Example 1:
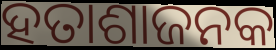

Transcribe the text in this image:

ହତାଶାଜନକ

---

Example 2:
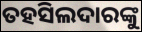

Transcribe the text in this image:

ତହସିଲଦାରଙ୍କୁ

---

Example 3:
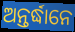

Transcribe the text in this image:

ଅନ୍ତର୍ଦ୍ଧାନେ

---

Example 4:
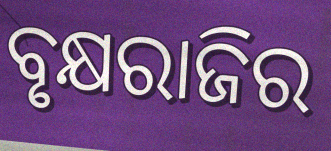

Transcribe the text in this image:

ବୃକ୍ଷରାଜିର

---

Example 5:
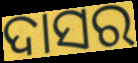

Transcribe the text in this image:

ଦାସର